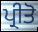
ਪ੍ਰੀਤੋ